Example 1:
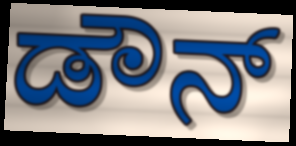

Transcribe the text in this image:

ಡೌನ್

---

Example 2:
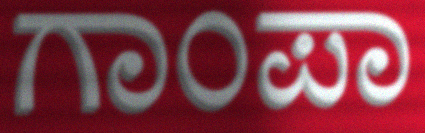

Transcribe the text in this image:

ಗಾಂಪಾ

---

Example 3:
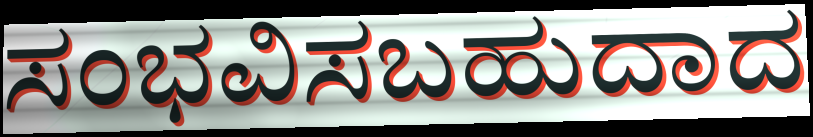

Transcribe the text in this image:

ಸಂಭವಿಸಬಹುದಾದ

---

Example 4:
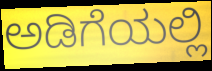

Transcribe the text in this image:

ಅಡಿಗೆಯಲ್ಲಿ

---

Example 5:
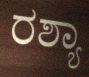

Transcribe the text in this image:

ರಶ್ಯಾ